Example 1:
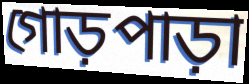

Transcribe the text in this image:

গোড়পাড়া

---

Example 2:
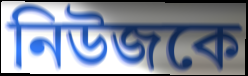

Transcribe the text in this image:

নিউজকে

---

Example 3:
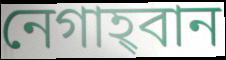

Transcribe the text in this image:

নেগাহ্‌বান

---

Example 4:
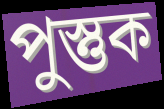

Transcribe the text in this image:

পুস্তুক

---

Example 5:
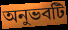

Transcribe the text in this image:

অনুভবটি